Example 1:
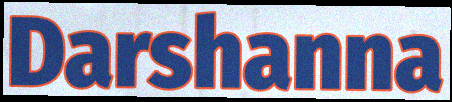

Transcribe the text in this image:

Darshanna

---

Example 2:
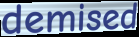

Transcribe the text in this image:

demised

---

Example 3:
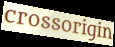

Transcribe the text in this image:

crossorigin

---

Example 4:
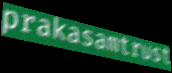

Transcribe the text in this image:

prakasamtrust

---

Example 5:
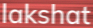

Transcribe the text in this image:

lakshat